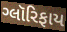
ગ્લૉરિફાય